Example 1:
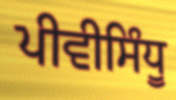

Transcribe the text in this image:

ਪੀਵੀਸਿੰਧੂ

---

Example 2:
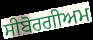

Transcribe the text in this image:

ਸੀਬੋਰਗੀਅਮ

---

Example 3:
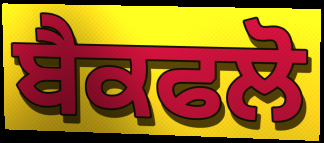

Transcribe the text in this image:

ਬੈਕਫਲੋ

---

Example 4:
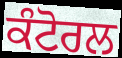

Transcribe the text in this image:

ਕੰਟੋਰਲ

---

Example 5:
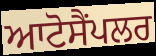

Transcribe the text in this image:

ਆਟੋਸੈਂਪਲਰ